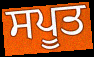
ਸਪੂਤ